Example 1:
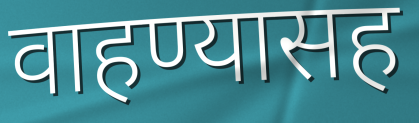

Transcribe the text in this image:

वाहण्यासह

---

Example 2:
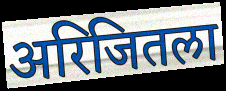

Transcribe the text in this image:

अरिजितला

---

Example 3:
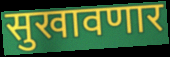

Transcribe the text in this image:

सुखावणार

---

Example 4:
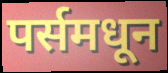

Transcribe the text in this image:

पर्समधून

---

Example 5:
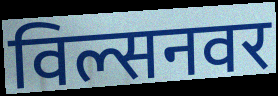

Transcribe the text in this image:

विल्सनवर